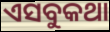
ଏସବୁକଥା